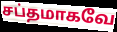
சப்தமாகவே